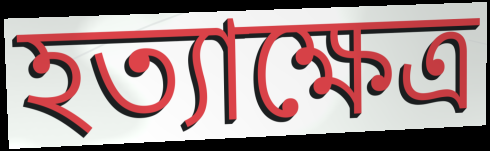
হত্যাক্ষেত্র